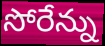
సోరేన్ను